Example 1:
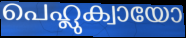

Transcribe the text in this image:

പെഹ്ലുക്വായോ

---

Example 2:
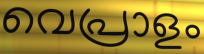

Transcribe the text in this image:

വെപ്രാളം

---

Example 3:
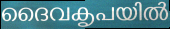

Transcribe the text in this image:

ദൈവകൃപയിൽ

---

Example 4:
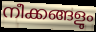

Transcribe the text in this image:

നീക്കങ്ങളും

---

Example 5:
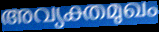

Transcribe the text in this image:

അവ്യക്തമുഖം